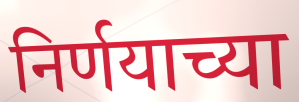
निर्णयाच्या